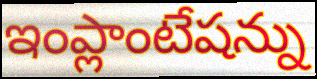
ఇంప్లాంటేషన్ను